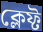
ক্লেফ্ট